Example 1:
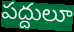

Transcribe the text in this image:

పద్దులూ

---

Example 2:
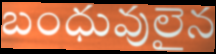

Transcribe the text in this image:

బంధువులైన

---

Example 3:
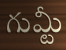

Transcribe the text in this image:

గుమ్టీ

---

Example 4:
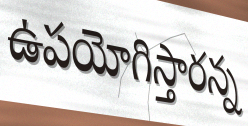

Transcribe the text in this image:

ఉపయోగిస్తారన్న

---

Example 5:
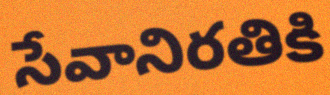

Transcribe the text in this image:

సేవానిరతికి